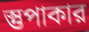
স্তুপাকার